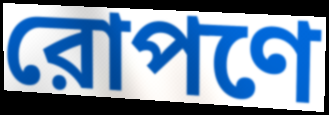
রোপণে